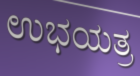
ಉಭಯತ್ರ